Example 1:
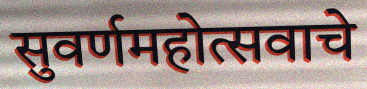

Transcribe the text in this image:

सुवर्णमहोत्सवाचे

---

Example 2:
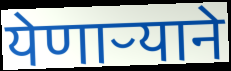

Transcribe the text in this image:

येणाऱ्याने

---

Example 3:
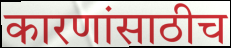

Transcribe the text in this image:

कारणांसाठीच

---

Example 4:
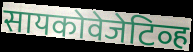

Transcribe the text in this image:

सायकोवेजेटिव्ह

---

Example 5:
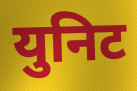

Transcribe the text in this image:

युनिट